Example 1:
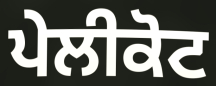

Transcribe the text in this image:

ਪੇਲੀਕੋਟ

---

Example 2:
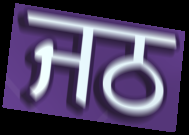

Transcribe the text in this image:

ਜਠ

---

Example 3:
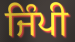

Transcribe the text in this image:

ਜਿੰਪੀ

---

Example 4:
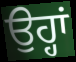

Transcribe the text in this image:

ਉਹ੍ਹਾਂ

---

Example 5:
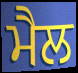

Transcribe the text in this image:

ਮੈਲ